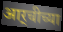
आर्चीच्या